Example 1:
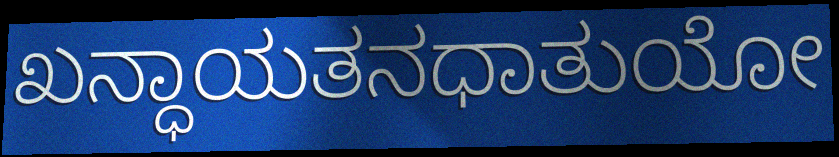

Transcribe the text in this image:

ಖನ್ಧಾಯತನಧಾತುಯೋ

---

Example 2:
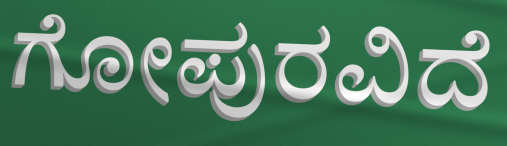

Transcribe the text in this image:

ಗೋಪುರವಿದೆ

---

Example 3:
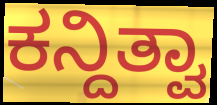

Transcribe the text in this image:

ಕನ್ದಿತ್ವಾ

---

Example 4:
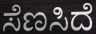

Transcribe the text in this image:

ಸೆಣಸಿದೆ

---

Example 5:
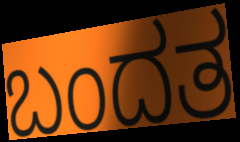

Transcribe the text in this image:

ಬಂದತ